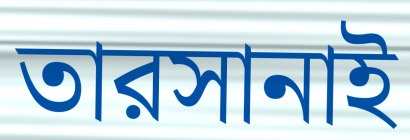
তারসানাই